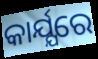
କାର୍ଯ୍ଯରେ